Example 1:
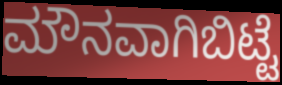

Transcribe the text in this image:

ಮೌನವಾಗಿಬಿಟ್ಟೆ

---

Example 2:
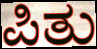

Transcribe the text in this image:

ಪಿತು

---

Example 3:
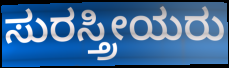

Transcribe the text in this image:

ಸುರಸ್ತ್ರೀಯರು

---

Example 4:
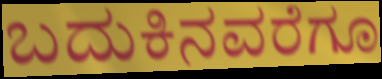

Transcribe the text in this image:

ಬದುಕಿನವರೆಗೂ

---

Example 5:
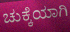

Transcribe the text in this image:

ಚುಕ್ಕೆಯಾಗಿ